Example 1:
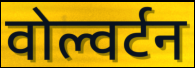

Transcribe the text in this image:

वोल्वर्टन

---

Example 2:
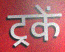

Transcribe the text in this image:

ट्रकें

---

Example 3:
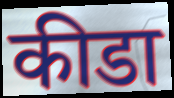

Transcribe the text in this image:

कीडा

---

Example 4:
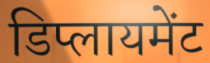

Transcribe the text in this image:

डिप्लायमेंट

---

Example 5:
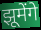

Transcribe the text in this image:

झूमेंगे